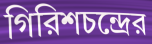
গিরিশচন্দ্রের